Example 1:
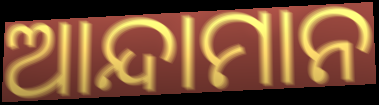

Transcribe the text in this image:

ଆନ୍ଦାମାନ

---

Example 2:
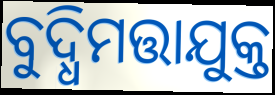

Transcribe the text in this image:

ବୁଦ୍ଧିମତ୍ତାଯୁକ୍ତ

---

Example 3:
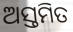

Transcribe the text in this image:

ଅସ୍ତମିତ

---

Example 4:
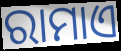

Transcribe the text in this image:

ରାମାଏ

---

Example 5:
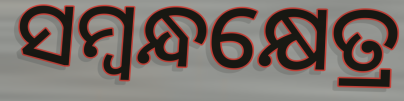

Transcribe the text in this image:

ସମ୍ବନ୍ଧକ୍ଷେତ୍ର